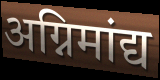
अग्निमांद्य